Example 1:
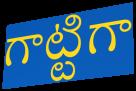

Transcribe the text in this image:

గాట్టిగా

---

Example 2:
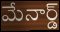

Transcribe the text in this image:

మేనార్డ్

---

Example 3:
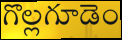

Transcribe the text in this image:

గొల్లగూడెం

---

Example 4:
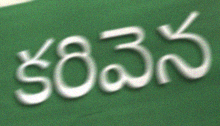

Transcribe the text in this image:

కరివెన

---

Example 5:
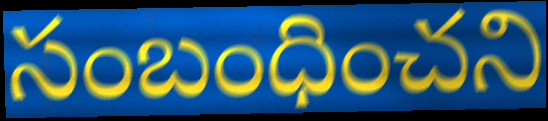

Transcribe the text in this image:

సంబంధించని